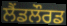
ਲੈਂਡਲੌਰਡ